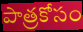
పాత్రకోసం